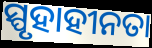
ସ୍ପୃହାହୀନତା